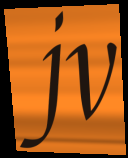
jv